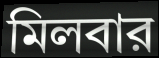
মিলবার